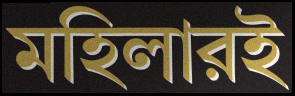
মহিলারই